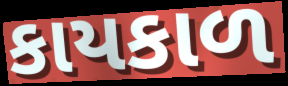
કાયકાળ